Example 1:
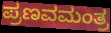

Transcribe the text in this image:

ಪ್ರಣವಮಂತ್ರ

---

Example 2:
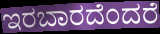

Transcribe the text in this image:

ಇರಬಾರದೆಂದರೆ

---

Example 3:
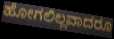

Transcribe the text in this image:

ಹೋಗಲಿಲ್ಲವಾದರೂ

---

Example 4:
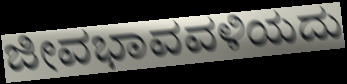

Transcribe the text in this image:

ಜೀವಭಾವವಳಿಯದು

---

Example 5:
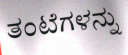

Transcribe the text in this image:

ತಂಟೆಗಳನ್ನು